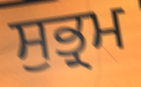
ਸੁਭ੍ਰਮ